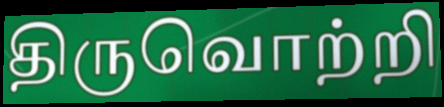
திருவொற்றி